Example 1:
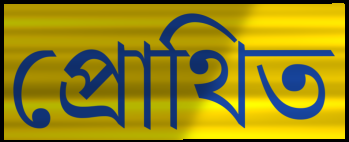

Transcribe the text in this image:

প্রোথিত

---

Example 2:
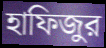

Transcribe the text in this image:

হাফিজুর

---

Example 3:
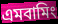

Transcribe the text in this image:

এমবামিং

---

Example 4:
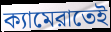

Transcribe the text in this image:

ক্যামেরাতেই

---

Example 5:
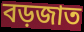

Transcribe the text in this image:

বড়জাত